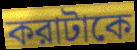
করাটাকে